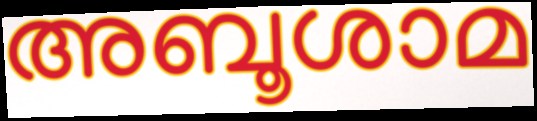
അബൂശാമ